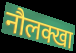
नौलक्खा